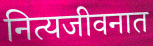
नित्यजीवनात